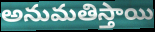
అనుమతిస్తాయి